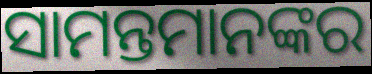
ସାମନ୍ତମାନଙ୍କର